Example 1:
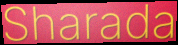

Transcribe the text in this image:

Sharada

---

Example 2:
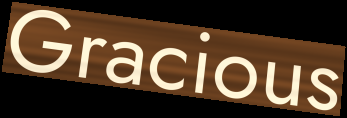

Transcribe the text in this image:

Gracious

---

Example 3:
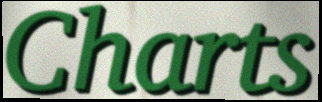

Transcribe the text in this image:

Charts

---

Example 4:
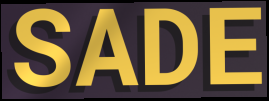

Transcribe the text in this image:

SADE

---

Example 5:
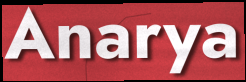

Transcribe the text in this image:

Anarya